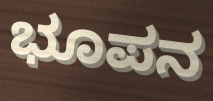
ಭೂಪನ